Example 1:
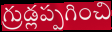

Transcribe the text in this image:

గ్రుడ్లప్పగించి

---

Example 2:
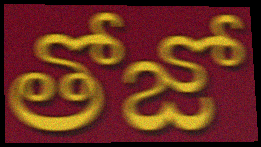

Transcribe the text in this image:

తోజో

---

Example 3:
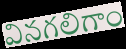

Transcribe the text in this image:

వినగలిగాం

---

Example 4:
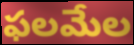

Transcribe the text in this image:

ఫలమేల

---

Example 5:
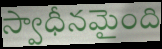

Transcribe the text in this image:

స్వాధీనమైంది